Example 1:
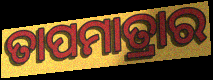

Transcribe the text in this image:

ତାପମାତ୍ରାର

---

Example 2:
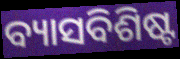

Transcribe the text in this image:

ବ୍ୟାସବିଶିଷ୍ଟ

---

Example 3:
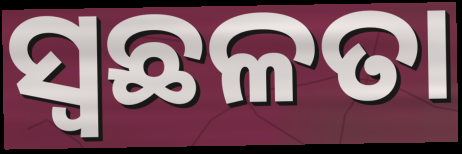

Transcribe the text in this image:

ସ୍ଵଛଳତା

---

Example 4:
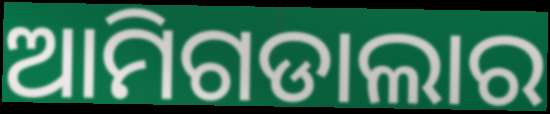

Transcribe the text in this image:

ଆମିଗଡାଲାର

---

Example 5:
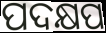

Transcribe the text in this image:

ପଦକ୍ଷପ